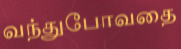
வந்துபோவதை